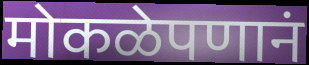
मोकळेपणानं